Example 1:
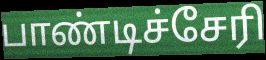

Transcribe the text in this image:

பாண்டிச்சேரி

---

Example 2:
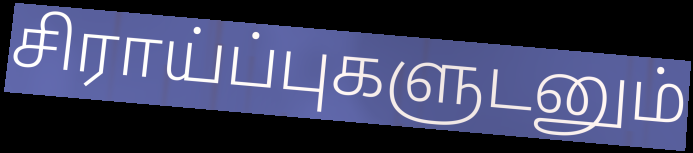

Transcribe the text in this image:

சிராய்ப்புகளுடனும்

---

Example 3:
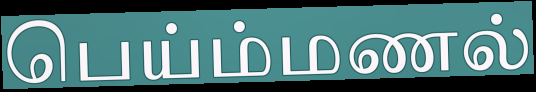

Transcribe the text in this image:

பெய்ம்மணல்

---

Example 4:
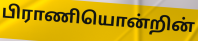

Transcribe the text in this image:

பிராணியொன்றின்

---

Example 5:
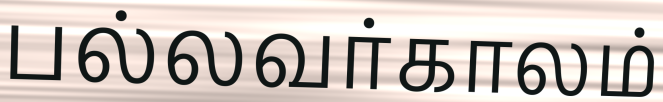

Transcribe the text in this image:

பல்லவர்காலம்